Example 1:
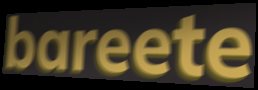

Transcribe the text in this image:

bareete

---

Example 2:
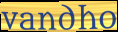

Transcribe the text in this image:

vandho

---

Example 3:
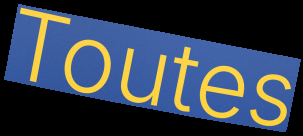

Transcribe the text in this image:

Toutes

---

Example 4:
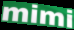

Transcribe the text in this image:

mimi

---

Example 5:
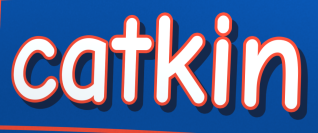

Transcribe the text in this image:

catkin